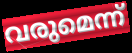
വരുമെന്ന്